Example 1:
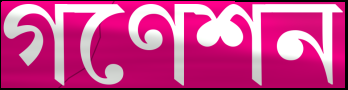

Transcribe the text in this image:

গণেশন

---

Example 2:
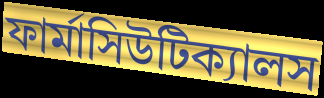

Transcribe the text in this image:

ফার্মাসিউটিক্যালস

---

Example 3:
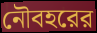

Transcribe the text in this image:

নৌবহরের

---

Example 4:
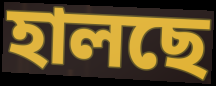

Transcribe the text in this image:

হালছে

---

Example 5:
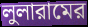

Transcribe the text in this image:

লুলারামের